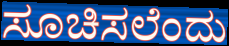
ಸೂಚಿಸಲೆಂದು